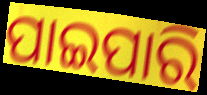
ପାଇପାରି